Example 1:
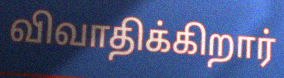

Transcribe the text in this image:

விவாதிக்கிறார்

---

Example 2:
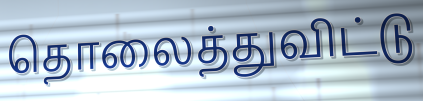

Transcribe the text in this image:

தொலைத்துவிட்டு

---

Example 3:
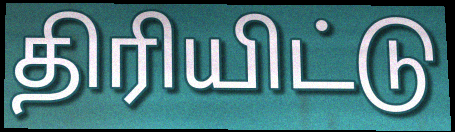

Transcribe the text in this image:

திரியிட்டு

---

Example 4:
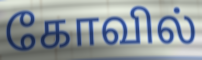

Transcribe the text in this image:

கோவில்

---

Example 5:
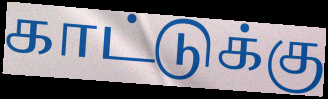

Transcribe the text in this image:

காட்டுக்கு